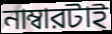
নাম্বারটাই